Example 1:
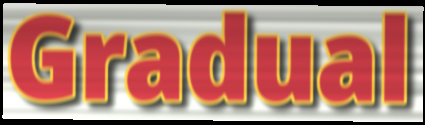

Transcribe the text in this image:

Gradual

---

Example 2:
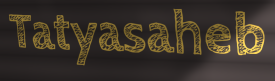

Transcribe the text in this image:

Tatyasaheb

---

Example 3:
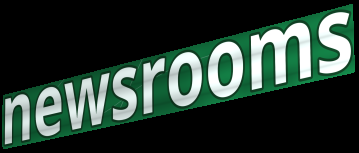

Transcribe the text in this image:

newsrooms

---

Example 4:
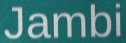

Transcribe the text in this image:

Jambi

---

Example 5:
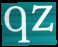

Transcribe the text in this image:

qz